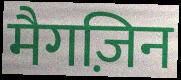
मैगज़िन